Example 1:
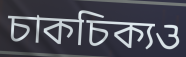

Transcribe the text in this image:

চাকচিক্যও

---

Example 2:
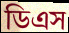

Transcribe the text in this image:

ডিএস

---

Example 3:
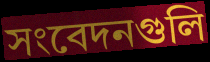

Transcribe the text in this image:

সংবেদনগুলি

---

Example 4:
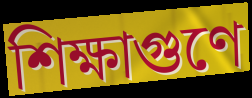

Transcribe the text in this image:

শিক্ষাগুণে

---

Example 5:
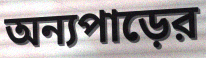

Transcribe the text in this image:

অন্যপাড়ের